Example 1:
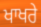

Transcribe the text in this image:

ਖਾਖਰੇ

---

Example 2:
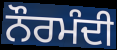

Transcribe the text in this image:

ਨੌਰਮੰਦੀ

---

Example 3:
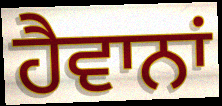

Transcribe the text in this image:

ਹੈਵਾਨਾਂ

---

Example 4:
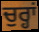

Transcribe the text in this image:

ਚੁਰ੍ਹਾਂ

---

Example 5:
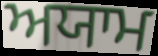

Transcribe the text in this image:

ਅਯਾਮ